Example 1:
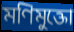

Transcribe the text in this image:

মণিমুক্তো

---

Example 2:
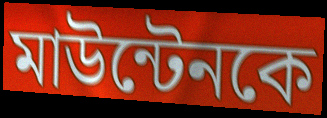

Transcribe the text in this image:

মাউন্টেনকে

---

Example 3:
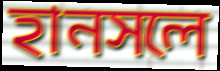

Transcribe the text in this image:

হানসলে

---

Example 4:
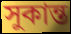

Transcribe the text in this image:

সুকান্ত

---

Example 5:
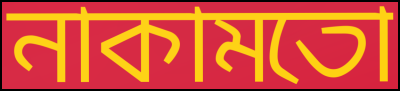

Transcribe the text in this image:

নাকামতো